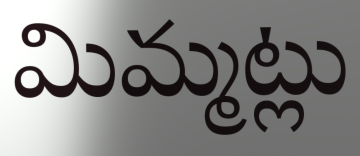
మిమ్మట్లు